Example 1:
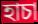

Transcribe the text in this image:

হাচা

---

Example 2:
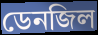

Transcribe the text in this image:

ডেনজিল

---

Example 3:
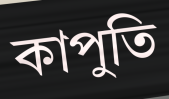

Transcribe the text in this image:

কাপুতি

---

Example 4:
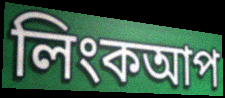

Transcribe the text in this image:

লিংকআপ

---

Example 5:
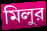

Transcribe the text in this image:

মিলুর